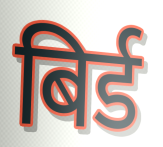
बिर्ड